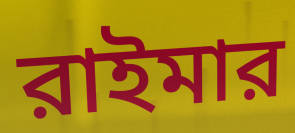
রাইমার